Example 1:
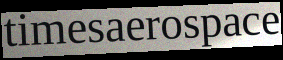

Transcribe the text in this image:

timesaerospace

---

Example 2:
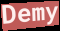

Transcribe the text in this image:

Demy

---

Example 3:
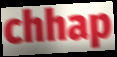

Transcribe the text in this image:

chhap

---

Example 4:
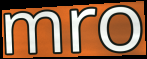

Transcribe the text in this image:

mro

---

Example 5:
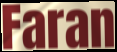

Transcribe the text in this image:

Faran